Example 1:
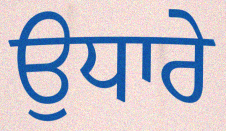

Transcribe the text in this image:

ਉਧਾਰੇ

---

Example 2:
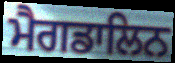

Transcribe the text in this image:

ਮੈਗਡਾਲਿਨ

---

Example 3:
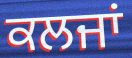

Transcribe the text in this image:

ਕਲਜਾਂ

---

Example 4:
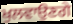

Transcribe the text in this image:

ਖੁਲਵਾਉਣਗੇ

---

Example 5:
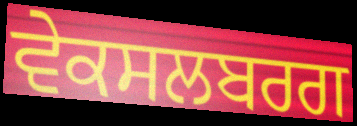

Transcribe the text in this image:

ਵੇਕਸਲਬਰਗ